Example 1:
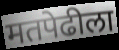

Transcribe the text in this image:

मतपेढीला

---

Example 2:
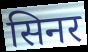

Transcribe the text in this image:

सिनर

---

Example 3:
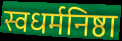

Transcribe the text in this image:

स्वधर्मनिष्ठा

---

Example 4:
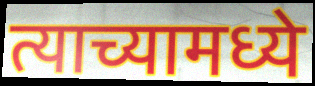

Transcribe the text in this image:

त्याच्यामध्ये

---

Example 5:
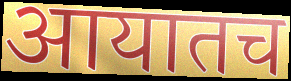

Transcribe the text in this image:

आयातच